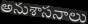
అనుశాసనాలు